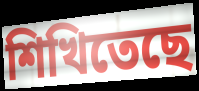
শিখিতেছে